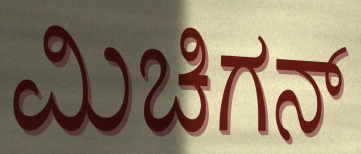
ಮಿಚಿಗನ್